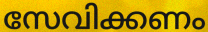
സേവിക്കണം